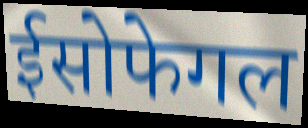
ईसोफेगल